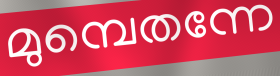
മുമ്പെതന്നേ